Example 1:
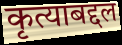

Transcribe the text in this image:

कृत्याबद्दल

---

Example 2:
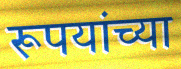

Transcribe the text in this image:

रूपयांच्या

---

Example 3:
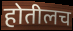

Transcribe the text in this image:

होतीलच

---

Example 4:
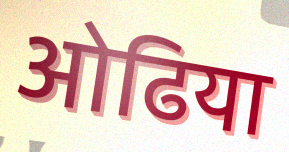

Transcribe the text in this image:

ओढिया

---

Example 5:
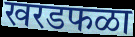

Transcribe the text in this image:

खरडफळा